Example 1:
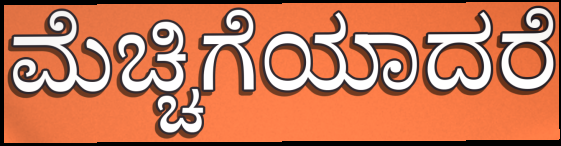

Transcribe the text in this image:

ಮೆಚ್ಚಿಗೆಯಾದರೆ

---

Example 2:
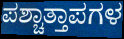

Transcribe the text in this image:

ಪಶ್ಚಾತ್ತಾಪಗಳ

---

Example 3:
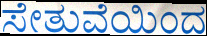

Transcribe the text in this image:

ಸೇತುವೆಯಿಂದ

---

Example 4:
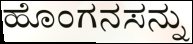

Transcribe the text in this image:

ಹೊಂಗನಸನ್ನು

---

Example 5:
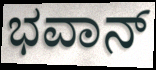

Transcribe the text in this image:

ಭವಾನ್